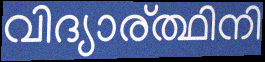
വിദ്യാര്ത്ഥിനി